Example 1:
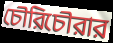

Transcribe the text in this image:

চৌরিচৌরার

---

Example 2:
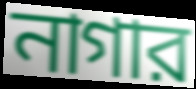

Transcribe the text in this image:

নাগার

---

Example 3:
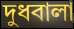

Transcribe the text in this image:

দুধবালা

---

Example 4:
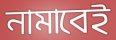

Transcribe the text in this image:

নামাবেই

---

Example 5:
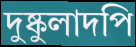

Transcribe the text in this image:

দুষ্কুলাদপি